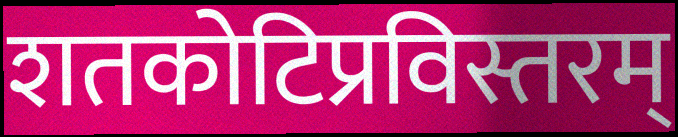
शतकोटिप्रविस्तरम्